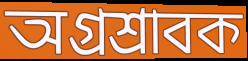
অগ্রশ্রাবক